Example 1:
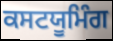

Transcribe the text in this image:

ਕਸਟਯੂਮਿੰਗ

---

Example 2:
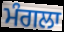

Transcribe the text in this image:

ਮੰਗਲਾ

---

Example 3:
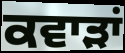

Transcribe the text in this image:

ਕਵਾੜਾਂ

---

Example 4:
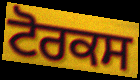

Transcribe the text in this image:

ਟੋਰਕਸ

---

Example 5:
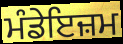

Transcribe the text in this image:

ਮੰਡੇਇਜ਼ਮ